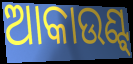
ଆକାଉଣ୍ଟ୍